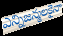
ఎన్నిజన్మలకైనా